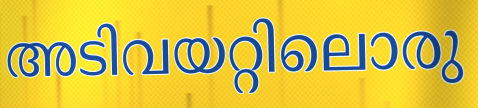
അടിവയറ്റിലൊരു